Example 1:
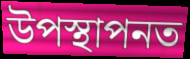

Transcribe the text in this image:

উপস্থাপনত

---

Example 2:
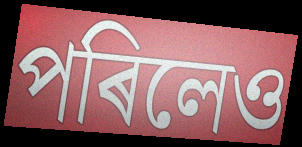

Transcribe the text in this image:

পৰিলেও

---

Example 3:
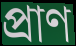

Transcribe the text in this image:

প্ৰাণ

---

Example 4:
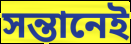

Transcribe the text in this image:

সন্তানেই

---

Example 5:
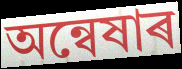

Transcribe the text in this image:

অন্বেষাৰ